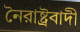
নৈরাষ্ট্রবাদী